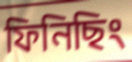
ফিনিছিং